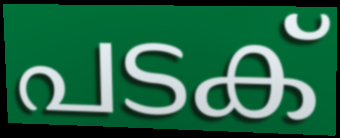
പടക്